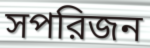
সপরিজন